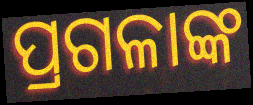
ପ୍ରଗଳାଙ୍କ